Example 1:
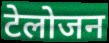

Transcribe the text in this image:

टेलोजन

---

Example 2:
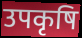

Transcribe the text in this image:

उपकृषि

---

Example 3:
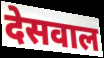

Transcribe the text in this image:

देसवाल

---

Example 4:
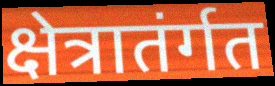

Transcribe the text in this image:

क्षेत्रातंर्गत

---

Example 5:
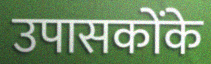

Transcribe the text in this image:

उपासकोंके